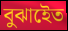
বুঝাইেত